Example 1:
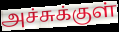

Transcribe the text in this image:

அச்சுக்குள்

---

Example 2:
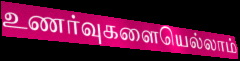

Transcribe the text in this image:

உணர்வுகளையெல்லாம்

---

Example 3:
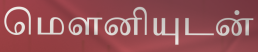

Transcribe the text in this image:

மௌனியுடன்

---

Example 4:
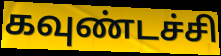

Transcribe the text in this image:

கவுண்டச்சி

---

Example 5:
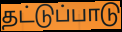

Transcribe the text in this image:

தட்டுப்பாடு